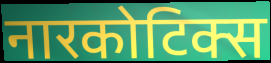
नारकोटिक्स